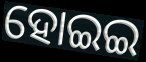
ହୋଇଇ